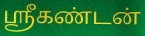
ஸ்ரீகண்டன்